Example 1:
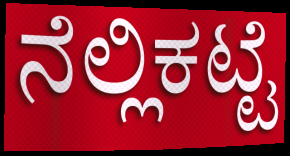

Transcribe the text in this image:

ನೆಲ್ಲಿಕಟ್ಟೆ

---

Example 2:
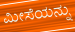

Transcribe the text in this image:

ಮೀಸೆಯನ್ನು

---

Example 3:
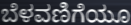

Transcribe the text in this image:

ಬೆಳವಣಿಗೆಯೂ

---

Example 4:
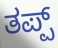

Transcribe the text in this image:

ತಪ್ಪ್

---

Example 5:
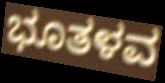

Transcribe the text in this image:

ಭೂತಳವ